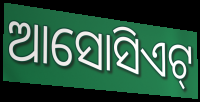
ଆସୋସିଏଟ୍